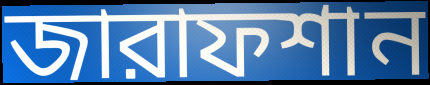
জারাফশান